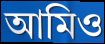
আমিও